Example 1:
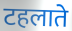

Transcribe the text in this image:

टहलाते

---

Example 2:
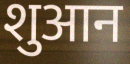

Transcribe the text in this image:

शुआन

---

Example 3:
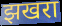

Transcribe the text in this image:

झखरा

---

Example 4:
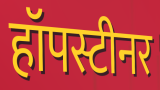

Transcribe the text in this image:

हॉपस्टीनर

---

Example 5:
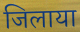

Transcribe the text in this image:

जिलाया